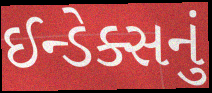
ઈન્ડેક્સનું